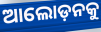
ଆଲୋଡ଼ନକୁ